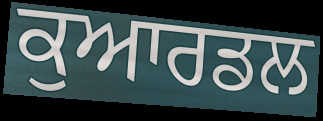
ਕੁਆਰਡਲ